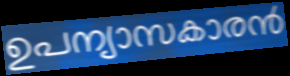
ഉപന്യാസകാരൻ